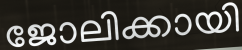
ജോലിക്കായി